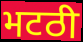
भटठी